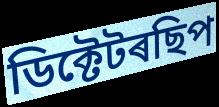
ডিক্টেটৰছিপ